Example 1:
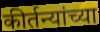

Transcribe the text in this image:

कीर्तन्यांच्या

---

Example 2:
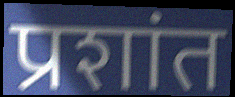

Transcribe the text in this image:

प्रशांत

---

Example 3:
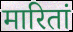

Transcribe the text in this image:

मारितां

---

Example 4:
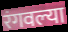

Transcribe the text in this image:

रंगवल्या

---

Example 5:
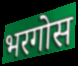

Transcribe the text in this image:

भरगोस